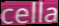
cella